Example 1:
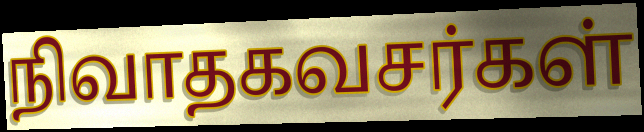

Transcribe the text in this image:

நிவாதகவசர்கள்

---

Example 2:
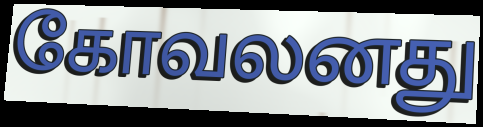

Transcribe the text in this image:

கோவலனது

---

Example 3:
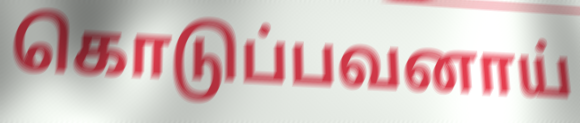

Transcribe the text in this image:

கொடுப்பவனாய்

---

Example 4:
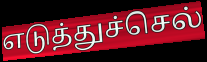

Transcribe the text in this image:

எடுத்துச்செல்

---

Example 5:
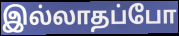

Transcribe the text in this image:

இல்லாதப்போ